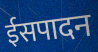
ईसपादन